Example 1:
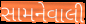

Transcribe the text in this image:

સામનેવાલી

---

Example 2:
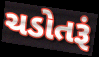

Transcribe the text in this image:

ચડોતરૂં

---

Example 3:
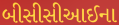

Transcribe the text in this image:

બીસીસીઆઈના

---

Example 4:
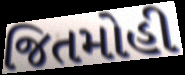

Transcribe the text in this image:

જિતમોહી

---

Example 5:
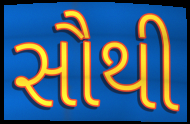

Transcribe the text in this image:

સૌથી